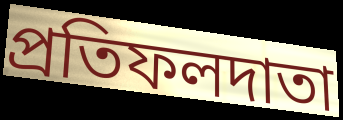
প্রতিফলদাতা